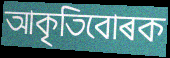
আকৃতিবোৰক